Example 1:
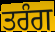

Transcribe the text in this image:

ਤਰੰਗ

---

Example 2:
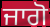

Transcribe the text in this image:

ਜਾਗੋ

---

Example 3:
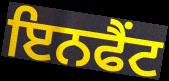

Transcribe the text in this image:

ਇਨਫੈਂਟ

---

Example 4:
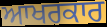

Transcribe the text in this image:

ਆਖਰਕਾਰ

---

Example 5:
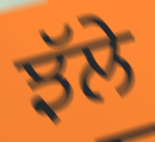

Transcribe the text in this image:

ਝੱਲੇ